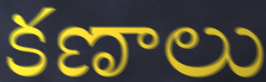
కణాలు